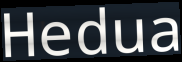
Hedua